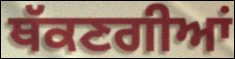
ਥੱਕਣਗੀਆਂ